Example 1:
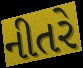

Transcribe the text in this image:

નીતરે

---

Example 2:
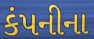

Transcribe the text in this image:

કંપનીના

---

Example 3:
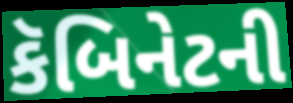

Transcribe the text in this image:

કૅબિનેટની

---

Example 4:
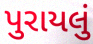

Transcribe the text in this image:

પુરાયલું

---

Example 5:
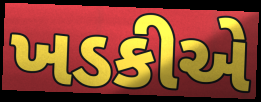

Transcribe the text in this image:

ખડકીએ